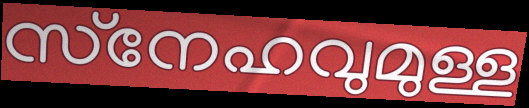
സ്‌നേഹവുമുള്ള